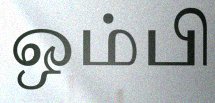
ஒம்பி